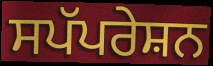
ਸਪੱਪਰੇਸ਼ਨ